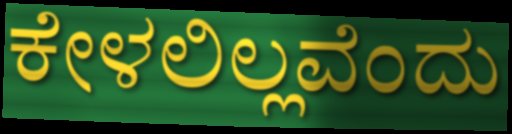
ಕೇಳಲಿಲ್ಲವೆಂದು